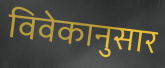
विवेकानुसार